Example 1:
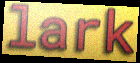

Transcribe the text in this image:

lark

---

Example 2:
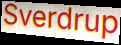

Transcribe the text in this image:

Sverdrup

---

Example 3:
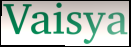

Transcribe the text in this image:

Vaisya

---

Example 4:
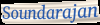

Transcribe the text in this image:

Soundarajan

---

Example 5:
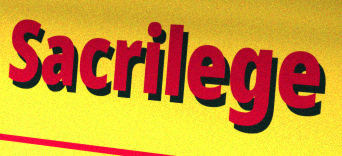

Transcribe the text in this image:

Sacrilege